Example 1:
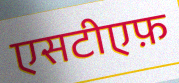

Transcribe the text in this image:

एसटीएफ़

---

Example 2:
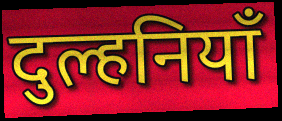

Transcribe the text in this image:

दुल्हनियाँ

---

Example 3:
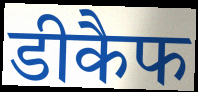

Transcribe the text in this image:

डीकैफ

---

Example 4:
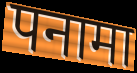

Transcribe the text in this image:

पनामा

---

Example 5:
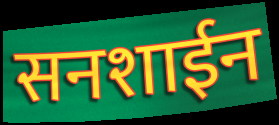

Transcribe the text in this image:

सनशाईन